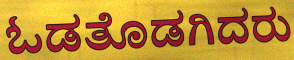
ಓಡತೊಡಗಿದರು